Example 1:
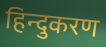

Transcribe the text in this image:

हिन्दुकरण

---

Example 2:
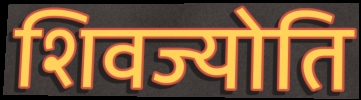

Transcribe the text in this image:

शिवज्योति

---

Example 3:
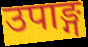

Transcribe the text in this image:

उपाङ्ग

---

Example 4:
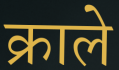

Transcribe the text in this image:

क्राले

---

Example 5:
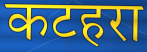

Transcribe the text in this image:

कटहरा